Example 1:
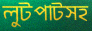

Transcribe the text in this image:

লুটপাটসহ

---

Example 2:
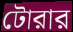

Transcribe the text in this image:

টোরার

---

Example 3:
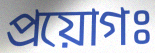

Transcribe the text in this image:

প্রয়োগঃ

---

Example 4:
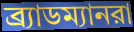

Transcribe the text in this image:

ব্র্যাডম্যানরা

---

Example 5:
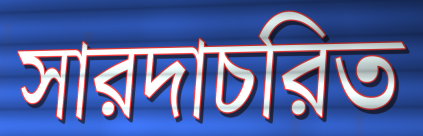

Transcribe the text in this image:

সারদাচরিত